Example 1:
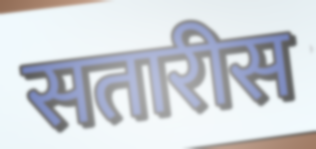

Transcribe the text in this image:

सतारीस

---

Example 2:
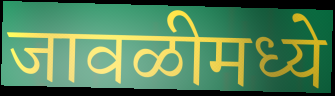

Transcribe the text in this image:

जावळीमध्ये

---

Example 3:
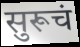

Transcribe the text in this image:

सुरूचं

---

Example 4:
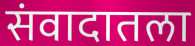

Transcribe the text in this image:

संवादातला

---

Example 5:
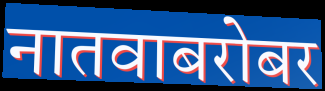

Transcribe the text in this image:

नातवाबरोबर